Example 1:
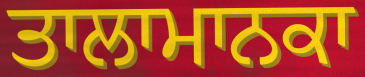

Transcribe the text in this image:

ਤਾਲਾਮਾਨਕਾ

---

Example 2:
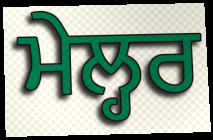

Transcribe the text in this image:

ਮੇਲ੍ਹਰ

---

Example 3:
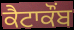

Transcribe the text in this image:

ਕੈਟਾਕੌਂਬ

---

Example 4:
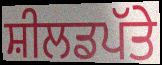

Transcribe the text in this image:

ਸ਼ੀਲਡਪੱਤੇ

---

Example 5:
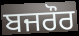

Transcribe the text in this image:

ਬਜਰੌਰ